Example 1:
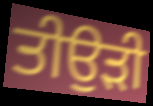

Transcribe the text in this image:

ਤੀਉੜੀ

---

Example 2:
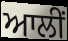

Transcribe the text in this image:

ਆਲੀਂ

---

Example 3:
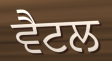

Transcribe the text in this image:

ਵੈਟਲ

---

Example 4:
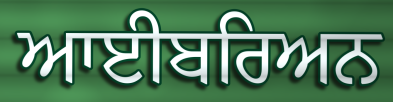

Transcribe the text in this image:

ਆਈਬਰਿਅਨ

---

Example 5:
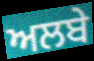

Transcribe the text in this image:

ਅਲਬੇ